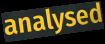
analysed